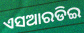
ଏସଆରଡିଇ